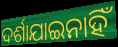
ଦର୍ଶାଯାଇନାହିଁ